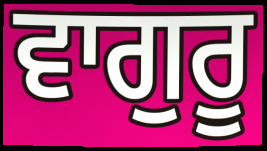
ਵਾਗੁਰੂ